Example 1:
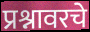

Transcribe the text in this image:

प्रश्नावरचे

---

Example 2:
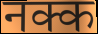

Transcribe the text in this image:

नक्क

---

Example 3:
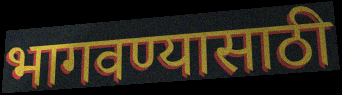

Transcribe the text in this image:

भागवण्यासाठी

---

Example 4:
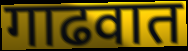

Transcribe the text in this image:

गाढवात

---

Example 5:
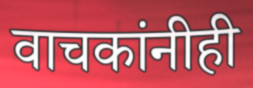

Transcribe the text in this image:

वाचकांनीही